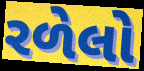
રળેલો